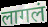
लागलं